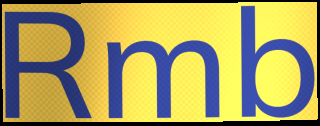
Rmb